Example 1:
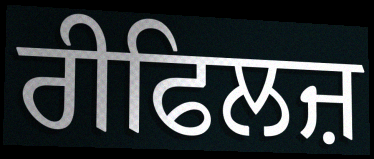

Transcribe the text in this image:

ਰੀਫਿਲਜ਼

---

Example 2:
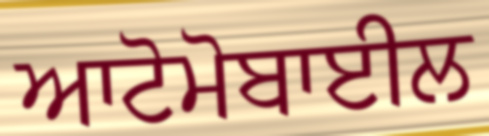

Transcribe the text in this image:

ਆਟੋਮੋਬਾਈਲ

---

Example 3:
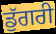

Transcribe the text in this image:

ਡੁੱਗਰੀ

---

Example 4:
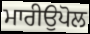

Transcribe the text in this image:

ਮਾਰੀਉਪੋਲ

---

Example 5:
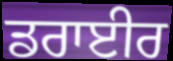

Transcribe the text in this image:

ਡਰਾਈਰ